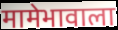
मामेभावाला